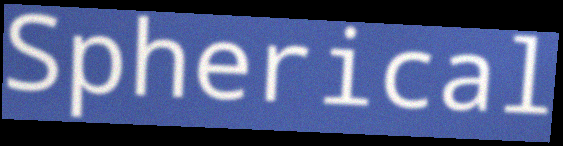
Spherical